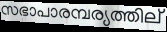
സഭാപാരമ്പര്യത്തില്